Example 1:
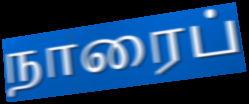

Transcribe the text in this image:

நாரைப்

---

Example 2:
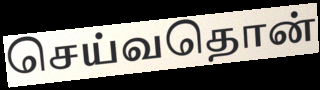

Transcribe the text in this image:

செய்வதொன்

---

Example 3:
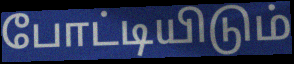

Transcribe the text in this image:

போட்டியிடும்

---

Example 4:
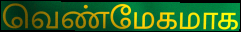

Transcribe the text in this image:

வெண்மேகமாக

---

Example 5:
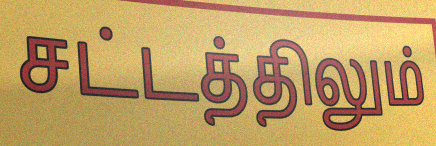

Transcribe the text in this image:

சட்டத்திலும்